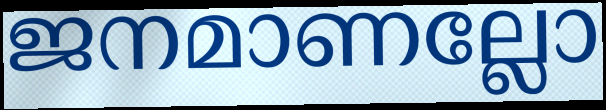
ജനമാണല്ലോ